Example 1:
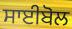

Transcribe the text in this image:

ਸਾਈਬੋਲ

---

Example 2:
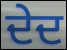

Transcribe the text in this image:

ਦੇਦ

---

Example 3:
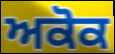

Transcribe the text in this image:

ਅਕੋਕ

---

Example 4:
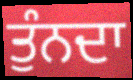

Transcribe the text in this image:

ਤੁੰਨਦਾ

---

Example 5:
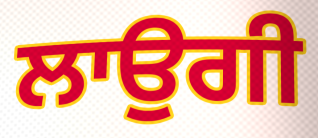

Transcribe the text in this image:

ਲਾਉਗੀ